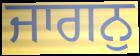
ਜਾਗਨੁ